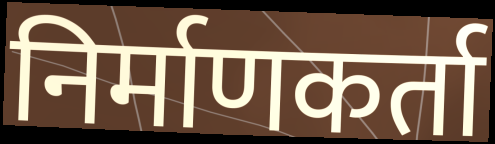
निर्माणकर्ता